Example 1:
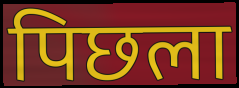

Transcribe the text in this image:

पिछला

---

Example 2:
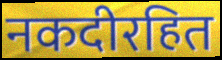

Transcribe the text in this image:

नकदीरहित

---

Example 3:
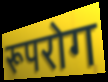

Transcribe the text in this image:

रूपरोग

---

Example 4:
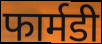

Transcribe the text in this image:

फार्मडी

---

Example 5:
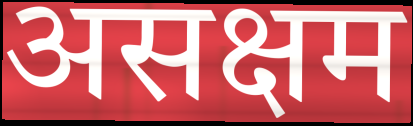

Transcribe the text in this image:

असक्षम